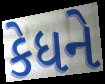
કેધને